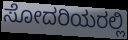
ಸೋದರಿಯರಲ್ಲಿ